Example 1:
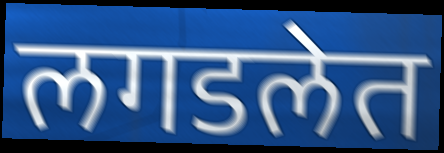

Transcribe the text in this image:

लगडलेत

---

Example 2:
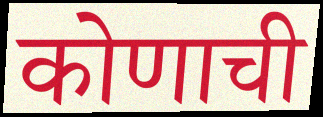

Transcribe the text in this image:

कोणाची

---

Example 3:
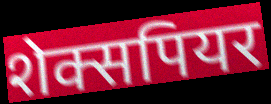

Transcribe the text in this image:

शेक्सपियर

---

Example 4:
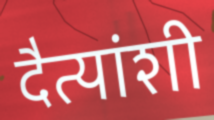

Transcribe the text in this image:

दैत्यांशी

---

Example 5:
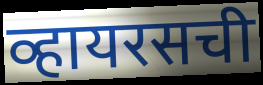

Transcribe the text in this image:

व्हायरसची